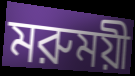
মরুময়ী